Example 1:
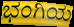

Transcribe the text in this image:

ಭಂಗಿಯ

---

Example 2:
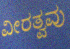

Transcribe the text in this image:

ವೀರತ್ವವು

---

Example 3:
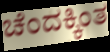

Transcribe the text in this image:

ಚೆಂದಕ್ಕಿಂತ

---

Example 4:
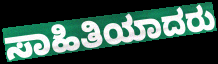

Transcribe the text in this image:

ಸಾಹಿತಿಯಾದರು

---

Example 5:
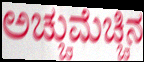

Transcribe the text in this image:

ಅಚ್ಚುಮೆಚ್ಚಿನ